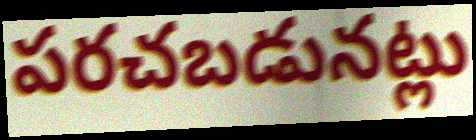
పరచబడునట్లు